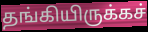
தங்கியிருக்கச்